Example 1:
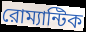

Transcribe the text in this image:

রোম্যান্টিক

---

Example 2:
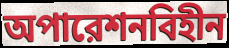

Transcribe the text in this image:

অপারেশনবিহীন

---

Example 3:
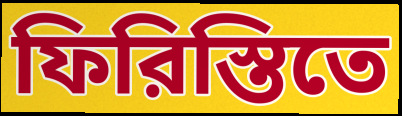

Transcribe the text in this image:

ফিরিস্তিতে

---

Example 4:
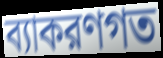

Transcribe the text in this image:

ব্যাকরণগত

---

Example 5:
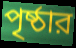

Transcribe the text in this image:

পৃষ্ঠার